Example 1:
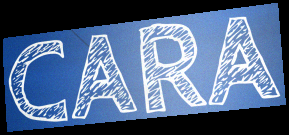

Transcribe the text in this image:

CARA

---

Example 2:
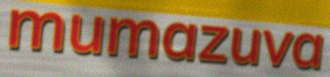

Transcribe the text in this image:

mumazuva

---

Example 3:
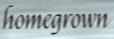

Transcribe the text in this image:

homegrown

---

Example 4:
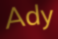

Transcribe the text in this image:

Ady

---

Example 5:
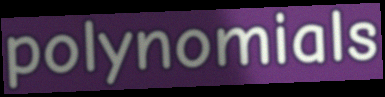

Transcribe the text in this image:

polynomials